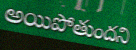
అయిపోతుందని